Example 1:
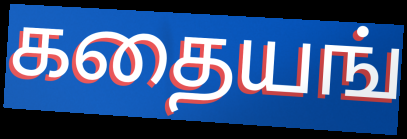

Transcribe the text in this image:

கதையங்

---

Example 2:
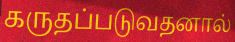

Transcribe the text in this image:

கருதப்படுவதனால்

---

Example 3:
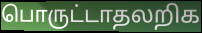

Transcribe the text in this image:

பொருட்டாதலறிக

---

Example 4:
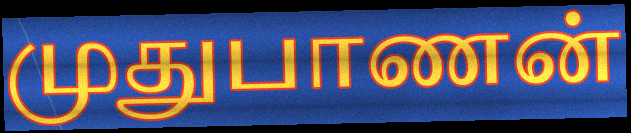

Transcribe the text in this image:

முதுபாணன்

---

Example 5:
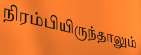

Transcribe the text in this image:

நிரம்பியிருந்தாலும்